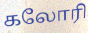
கலோரி